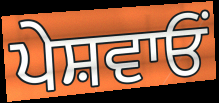
ਪੇਸ਼ਵਾਓਂ